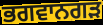
ਭਗਵਾਨਗੜ